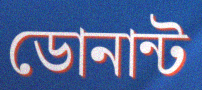
ডোনান্ট